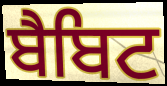
ਬੈਬਿਟ